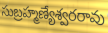
సుబ్రహ్మణ్యేశ్వరరావు